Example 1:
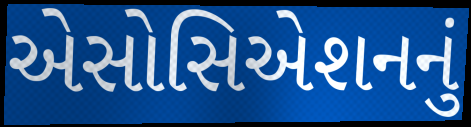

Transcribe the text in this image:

એસોસિએશનનું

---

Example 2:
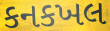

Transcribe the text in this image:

કનકખલ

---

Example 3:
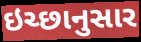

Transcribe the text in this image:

ઇચ્છાનુસાર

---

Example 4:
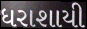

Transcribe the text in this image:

ધરાશાયી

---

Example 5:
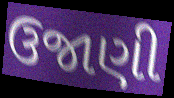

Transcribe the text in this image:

ઉજાણી